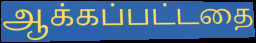
ஆக்கப்பட்டதை